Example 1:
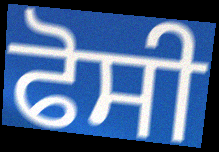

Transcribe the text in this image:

ਫੋਸੀ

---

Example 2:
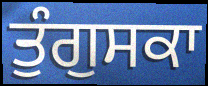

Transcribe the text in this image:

ਤੁੰਗੁਸਕਾ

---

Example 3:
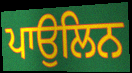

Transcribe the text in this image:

ਪਾਉਲਿਨ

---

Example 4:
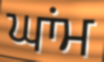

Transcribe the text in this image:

ਘਾਂਮ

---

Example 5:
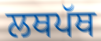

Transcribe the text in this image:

ਲਥਪੱਥ